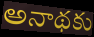
అనాథకు